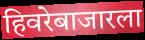
हिवरेबाजारला